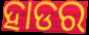
ହାଡର